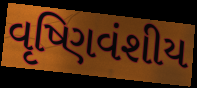
વૃષ્ણિવંશીય